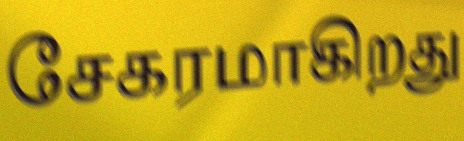
சேகரமாகிறது